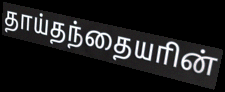
தாய்தந்தையரின்